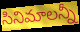
సినిమాలన్నీ